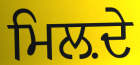
ਮਿਲ਼ਦੇ